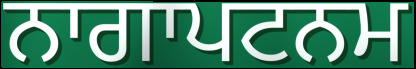
ਨਾਗਾਪਟਨਮ